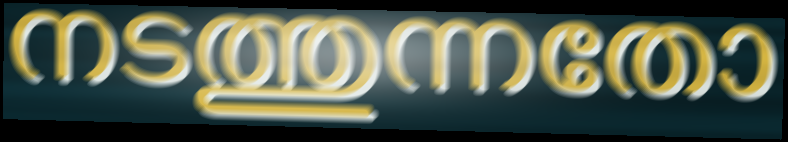
നടത്തുന്നതോ